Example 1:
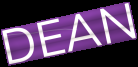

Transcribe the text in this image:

DEAN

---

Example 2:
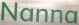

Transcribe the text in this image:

Nanna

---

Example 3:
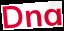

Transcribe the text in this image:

Dna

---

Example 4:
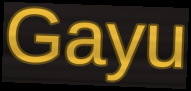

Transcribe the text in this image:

Gayu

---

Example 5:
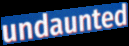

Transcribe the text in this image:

undaunted